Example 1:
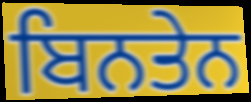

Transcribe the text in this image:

ਬਿਨਤੇਨ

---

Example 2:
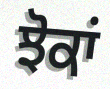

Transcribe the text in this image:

ਝੋਕਾਂ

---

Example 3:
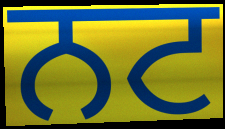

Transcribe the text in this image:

ਨਟ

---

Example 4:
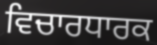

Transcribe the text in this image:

ਵਿਚਾਰਧਾਰਕ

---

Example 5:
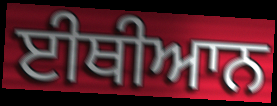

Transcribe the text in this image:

ਈਥੀਆਨ